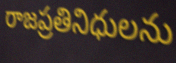
రాజప్రతినిధులను